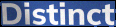
Distinct